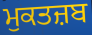
ਮੁਕਤਜ਼ਬ